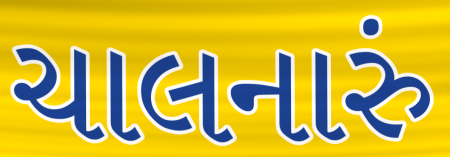
ચાલનારું